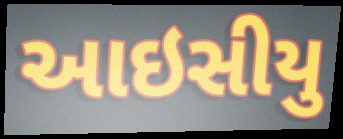
આઇસીયુ